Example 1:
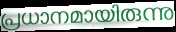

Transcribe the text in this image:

പ്രധാനമായിരുന്നു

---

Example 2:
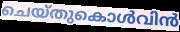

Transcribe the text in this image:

ചെയ്തുകൊൾവിൻ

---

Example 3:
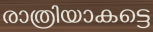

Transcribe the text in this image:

രാത്രിയാകട്ടെ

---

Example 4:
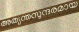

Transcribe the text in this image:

അത്യന്തസുന്ദരമായ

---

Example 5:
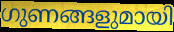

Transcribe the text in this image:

ഗുണങ്ങളുമായി